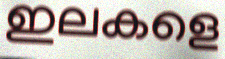
ഇലകളെ